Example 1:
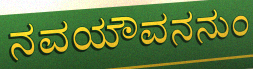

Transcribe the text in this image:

ನವಯೌವನನುಂ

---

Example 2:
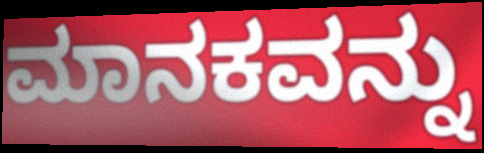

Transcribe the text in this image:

ಮಾನಕವನ್ನು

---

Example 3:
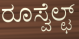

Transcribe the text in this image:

ರೂಸ್ವೆಲ್ಟ್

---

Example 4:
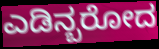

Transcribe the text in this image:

ಎಡಿನ್ಬರೋದ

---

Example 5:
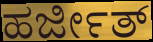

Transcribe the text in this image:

ಹರ್ಜೀತ್